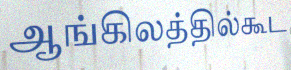
ஆங்கிலத்தில்கூட